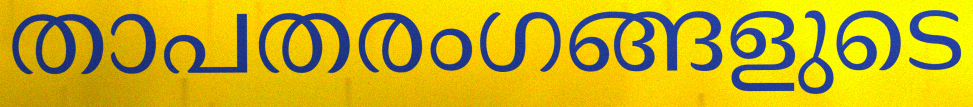
താപതരംഗങ്ങളുടെ